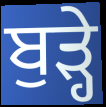
ਬੁੜ੍ਹੇ